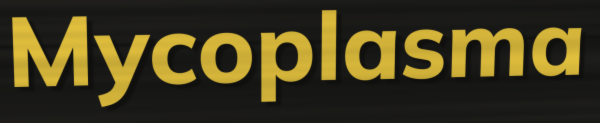
Mycoplasma